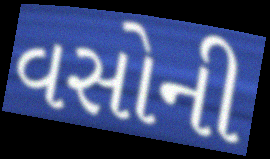
વસોની